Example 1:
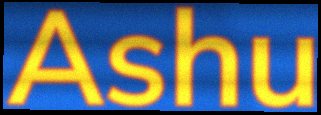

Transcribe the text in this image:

Ashu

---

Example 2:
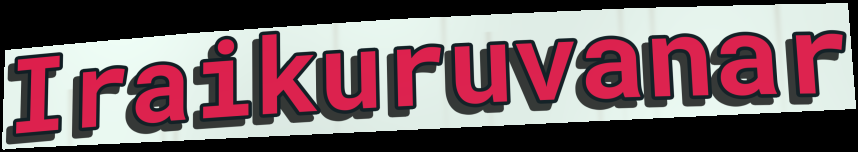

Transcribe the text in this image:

Iraikuruvanar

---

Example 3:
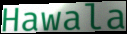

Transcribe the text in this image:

Hawala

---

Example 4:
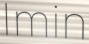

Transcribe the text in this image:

Imin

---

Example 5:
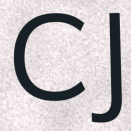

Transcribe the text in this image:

CJ